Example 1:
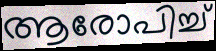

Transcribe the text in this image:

ആരോപിച്ച്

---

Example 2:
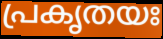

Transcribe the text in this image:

പ്രകൃതയഃ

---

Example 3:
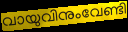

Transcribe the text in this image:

വായുവിനുംവേണ്ടി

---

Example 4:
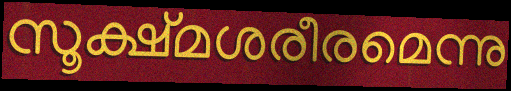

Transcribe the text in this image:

സൂക്ഷ്മശരീരമെന്നു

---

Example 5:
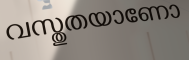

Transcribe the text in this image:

വസ്തുതയാണോ